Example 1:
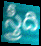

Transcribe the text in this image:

స్త్రీది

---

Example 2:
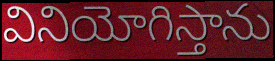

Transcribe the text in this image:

వినియోగిస్తాను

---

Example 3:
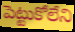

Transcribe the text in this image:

పెట్టుకోలేని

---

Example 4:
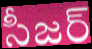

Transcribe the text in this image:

సీజర్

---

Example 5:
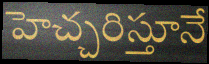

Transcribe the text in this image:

హెచ్చరిస్తూనే